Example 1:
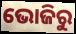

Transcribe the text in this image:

ଭୋଜିରୁ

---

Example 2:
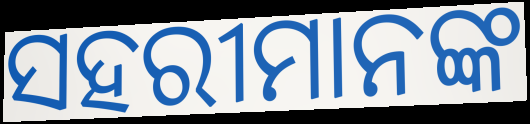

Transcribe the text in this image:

ସହରୀମାନଙ୍କ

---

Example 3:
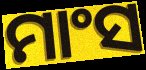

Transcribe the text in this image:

ମାଂସ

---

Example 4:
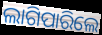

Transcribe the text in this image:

ଲାଗିପାରିଲେ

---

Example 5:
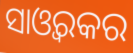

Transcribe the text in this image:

ସାଓ୍ୱରକର